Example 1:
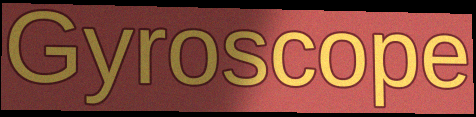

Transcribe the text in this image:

Gyroscope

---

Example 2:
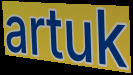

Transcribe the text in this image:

artuk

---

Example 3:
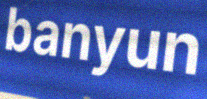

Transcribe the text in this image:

banyun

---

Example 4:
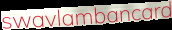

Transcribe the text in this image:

swavlambancard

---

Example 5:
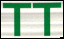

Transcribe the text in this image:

TT